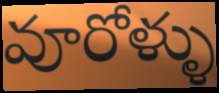
వూరోళ్ళు